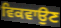
ਵਿਕਵਾਉਣ